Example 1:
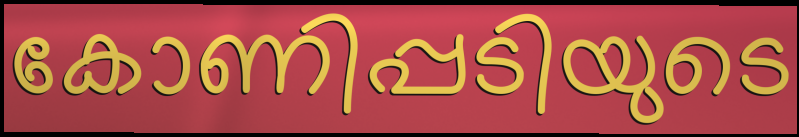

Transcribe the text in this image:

കോണിപ്പടിയുടെ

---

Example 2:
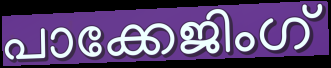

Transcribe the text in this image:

പാക്കേജിംഗ്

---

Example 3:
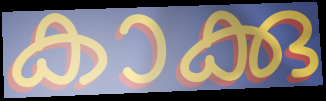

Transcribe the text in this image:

കാക്കു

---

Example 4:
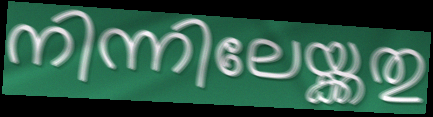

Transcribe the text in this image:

നിന്നിലേയ്ക്കതു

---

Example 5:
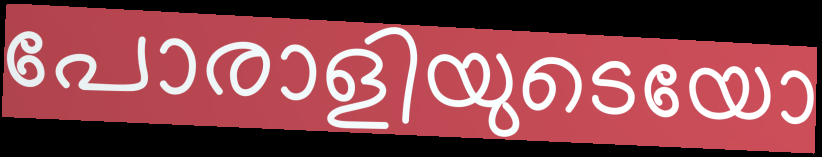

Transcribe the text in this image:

പോരാളിയുടെയോ